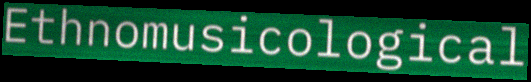
Ethnomusicological